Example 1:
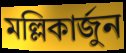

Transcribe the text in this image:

মল্লিকার্জুন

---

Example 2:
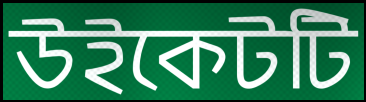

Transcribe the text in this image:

উইকেটটি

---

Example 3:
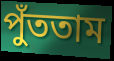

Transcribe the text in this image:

পুঁততাম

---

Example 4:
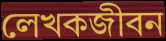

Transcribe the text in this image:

লেখকজীবন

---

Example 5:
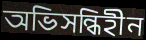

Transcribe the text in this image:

অভিসন্ধিহীন